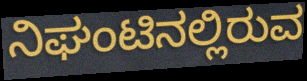
ನಿಘಂಟಿನಲ್ಲಿರುವ